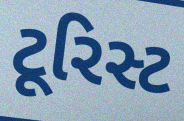
ટૂરિસ્ટ